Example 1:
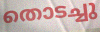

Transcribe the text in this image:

തൊടച്ചു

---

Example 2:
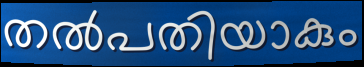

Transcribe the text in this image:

തൽപതിയാകും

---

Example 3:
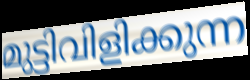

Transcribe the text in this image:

മുട്ടിവിളിക്കുന്ന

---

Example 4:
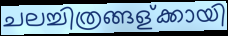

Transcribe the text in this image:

ചലച്ചിത്രങ്ങള്ക്കായി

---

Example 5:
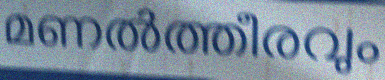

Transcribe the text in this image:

മണൽത്തീരവും